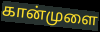
கான்முளை